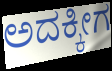
ಅದಕ್ಕೀಗ